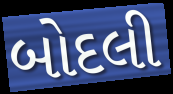
બોદલી